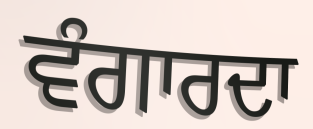
ਵੰਗਾਰਦਾ